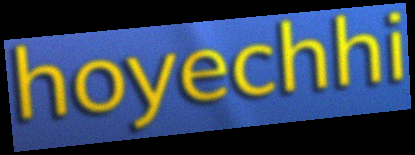
hoyechhi